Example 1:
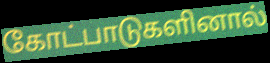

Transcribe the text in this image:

கோட்பாடுகளினால்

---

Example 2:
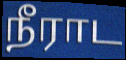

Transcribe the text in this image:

நீராட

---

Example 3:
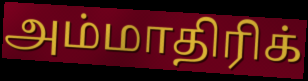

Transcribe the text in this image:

அம்மாதிரிக்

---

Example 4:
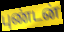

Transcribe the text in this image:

புண்டன்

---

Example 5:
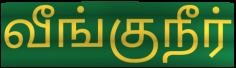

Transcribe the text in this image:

வீங்குநீர்